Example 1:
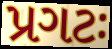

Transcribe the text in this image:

પ્રગટઃ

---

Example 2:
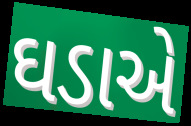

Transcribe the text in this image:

ઘડાએ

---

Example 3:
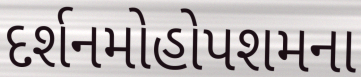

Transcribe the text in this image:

દર્શનમોહોપશમના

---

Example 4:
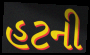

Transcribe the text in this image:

હટની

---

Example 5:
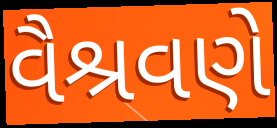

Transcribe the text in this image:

વૈશ્રવણે